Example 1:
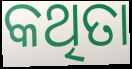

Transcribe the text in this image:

କଥିତା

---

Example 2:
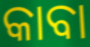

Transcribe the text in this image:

କାବା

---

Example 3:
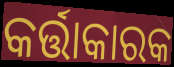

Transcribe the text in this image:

କର୍ତ୍ତାକାରକ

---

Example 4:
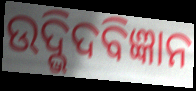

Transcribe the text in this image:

ଉଦ୍ଭିଦବିଜ୍ଞାନ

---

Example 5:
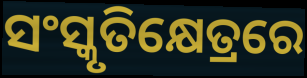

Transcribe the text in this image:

ସଂସ୍କୃତିକ୍ଷେତ୍ରରେ